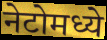
नेटोमध्ये